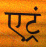
एट्रं